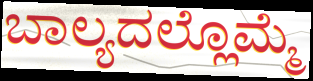
ಬಾಲ್ಯದಲ್ಲೊಮ್ಮೆ